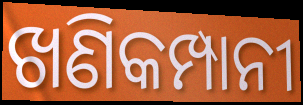
ଖଣିକମ୍ପାନୀ